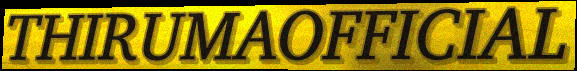
THIRUMAOFFICIAL